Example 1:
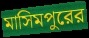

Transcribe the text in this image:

মাসিমপুরের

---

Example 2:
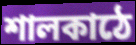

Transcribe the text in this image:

শালকাঠে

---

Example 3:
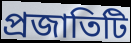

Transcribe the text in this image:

প্রজাতিটি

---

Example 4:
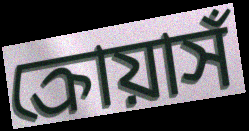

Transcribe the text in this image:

ক্রোয়াসঁ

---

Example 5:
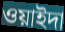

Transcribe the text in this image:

ওয়াইদা